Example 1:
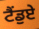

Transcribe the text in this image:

ਟੈਂਡੁਏ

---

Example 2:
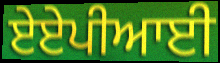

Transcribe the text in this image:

ਏਏਪੀਆਈ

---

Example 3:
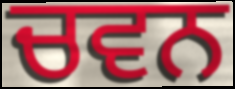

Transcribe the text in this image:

ਚਵਨ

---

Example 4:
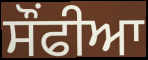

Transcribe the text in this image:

ਸੌਂਫੀਆ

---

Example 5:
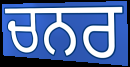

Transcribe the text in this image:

ਚਨਰ